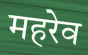
महरेव